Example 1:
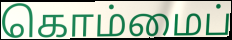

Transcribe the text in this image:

கொம்மைப்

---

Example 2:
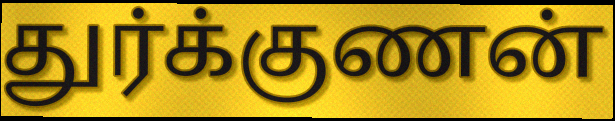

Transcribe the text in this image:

துர்க்குணன்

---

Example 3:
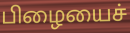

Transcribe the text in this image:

பிழையைச்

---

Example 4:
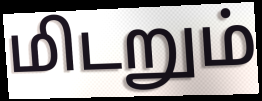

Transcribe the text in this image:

மிடறும்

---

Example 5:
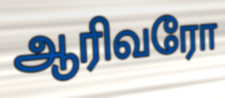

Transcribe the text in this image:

ஆரிவரோ